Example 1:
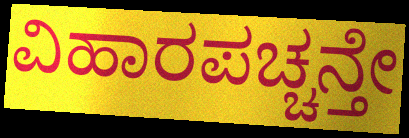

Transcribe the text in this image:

ವಿಹಾರಪಚ್ಚನ್ತೇ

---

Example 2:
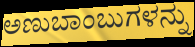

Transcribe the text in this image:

ಅಣುಬಾಂಬುಗಳನ್ನು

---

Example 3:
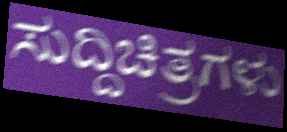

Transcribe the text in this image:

ಸುದ್ದಿಚಿತ್ರಗಳು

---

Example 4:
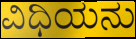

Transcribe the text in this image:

ವಿಧಿಯನು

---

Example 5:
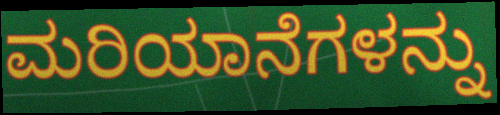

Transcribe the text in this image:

ಮರಿಯಾನೆಗಳನ್ನು